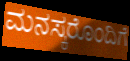
ಮನಸ್ಕರೊಂದಿಗೆ